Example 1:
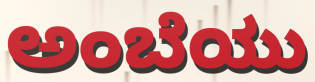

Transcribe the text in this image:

ಅಂಬೆಯು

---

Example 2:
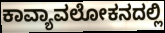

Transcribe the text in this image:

ಕಾವ್ಯಾವಲೋಕನದಲ್ಲಿ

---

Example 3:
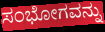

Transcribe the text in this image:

ಸಂಭೋಗವನ್ನು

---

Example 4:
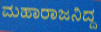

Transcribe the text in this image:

ಮಹಾರಾಜನಿದ್ದ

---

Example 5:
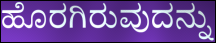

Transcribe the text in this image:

ಹೊರಗಿರುವುದನ್ನು